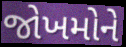
જોખમોને